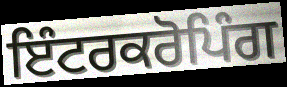
ਇੰਟਰਕਰੋਪਿੰਗ